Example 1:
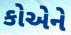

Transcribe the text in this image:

કોએને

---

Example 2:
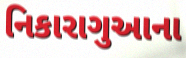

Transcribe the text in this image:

નિકારાગુઆના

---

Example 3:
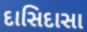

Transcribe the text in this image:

દાસિદાસા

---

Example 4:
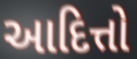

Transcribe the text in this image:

આદિત્તો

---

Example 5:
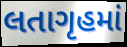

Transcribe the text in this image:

લતાગૃહમાં